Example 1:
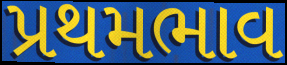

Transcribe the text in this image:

પ્રથમભાવ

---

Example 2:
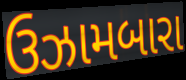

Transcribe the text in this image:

ઉઝામબારા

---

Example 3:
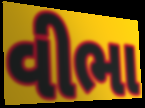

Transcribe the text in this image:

વીભા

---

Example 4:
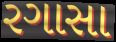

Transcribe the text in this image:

રગાસા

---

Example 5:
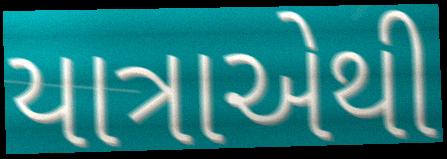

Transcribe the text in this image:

યાત્રાએથી